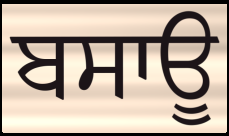
ਬਸਾਊ